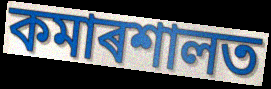
কমাৰশালত